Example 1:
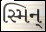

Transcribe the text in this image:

સ્મિન્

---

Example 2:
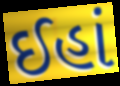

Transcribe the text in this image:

ઈહાં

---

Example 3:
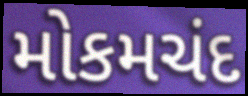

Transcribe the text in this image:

મોકમચંદ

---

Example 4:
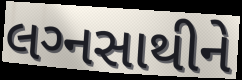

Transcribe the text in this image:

લગ્‍નસાથીને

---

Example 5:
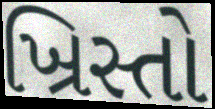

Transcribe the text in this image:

ખ્રિસ્તો